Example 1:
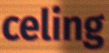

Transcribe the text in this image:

celing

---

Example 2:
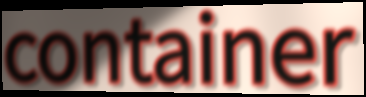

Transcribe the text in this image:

container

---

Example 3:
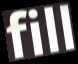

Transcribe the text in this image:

fill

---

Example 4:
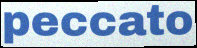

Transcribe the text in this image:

peccato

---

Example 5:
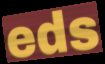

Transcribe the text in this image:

eds